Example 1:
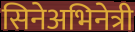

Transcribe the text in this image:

सिनेअभिनेत्री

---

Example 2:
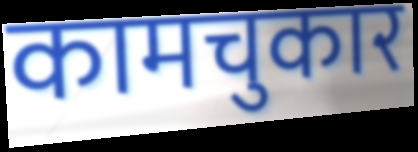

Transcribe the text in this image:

कामचुकार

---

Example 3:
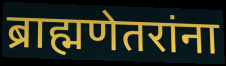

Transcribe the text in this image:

ब्राह्मणेतरांना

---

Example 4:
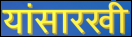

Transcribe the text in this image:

यांसारखी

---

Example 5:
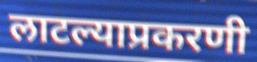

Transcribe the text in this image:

लाटल्याप्रकरणी